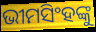
ଭୀମସିଂହଙ୍କୁ